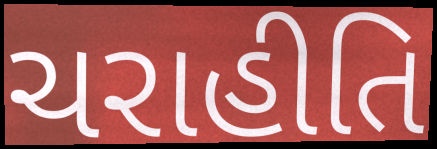
ચરાહીતિ